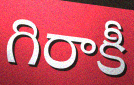
గిరాకీ